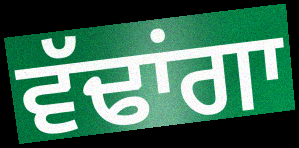
ਵੱਢਾਂਗਾ